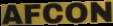
AFCON